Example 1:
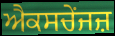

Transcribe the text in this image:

ਐਕਸਚੇਂਜਜ਼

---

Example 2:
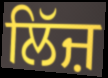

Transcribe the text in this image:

ਲਿੱਜ਼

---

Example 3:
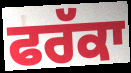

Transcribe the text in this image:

ਫਰੱਕਾ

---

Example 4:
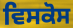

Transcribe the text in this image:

ਵਿਸਕੋਸ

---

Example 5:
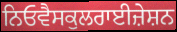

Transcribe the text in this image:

ਨਿਓਵੈਸਕੁਲਰਾਈਜ਼ੇਸ਼ਨ